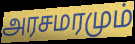
அரசமரமும்